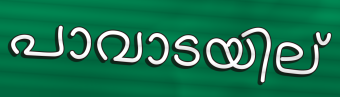
പാവാടയില്